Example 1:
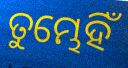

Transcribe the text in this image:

ତୁମ୍ଭେହିଁ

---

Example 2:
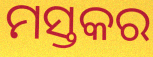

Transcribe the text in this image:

ମସ୍ତକର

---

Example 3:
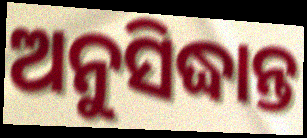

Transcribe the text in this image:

ଅନୁସିଦ୍ଧାନ୍ତ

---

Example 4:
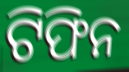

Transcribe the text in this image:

ଟିଫିନ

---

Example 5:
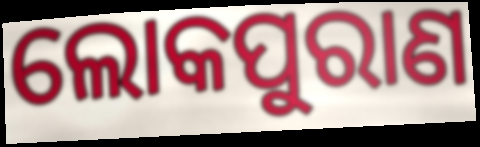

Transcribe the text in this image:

ଲୋକପୁରାଣ